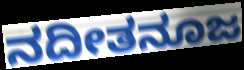
ನದೀತನೂಜ